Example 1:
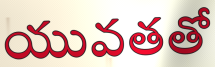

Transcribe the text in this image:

యువతతో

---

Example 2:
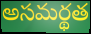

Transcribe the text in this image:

అసమర్థత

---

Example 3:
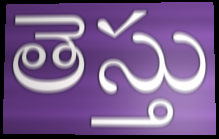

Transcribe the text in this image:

తెస్తు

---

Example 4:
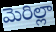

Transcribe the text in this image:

మెరిల్లా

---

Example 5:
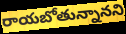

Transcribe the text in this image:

రాయబోతున్నానని